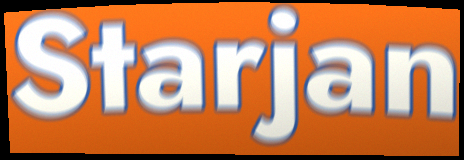
Starjan